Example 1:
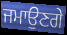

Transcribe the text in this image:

ਜਮਾਉਣਗੇ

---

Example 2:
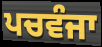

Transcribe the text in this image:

ਪਚਵੰਜਾ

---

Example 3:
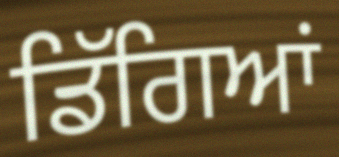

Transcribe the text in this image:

ਡਿੱਗਿਆਂ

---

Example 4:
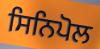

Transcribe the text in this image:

ਸਿਨਿਪੋਲ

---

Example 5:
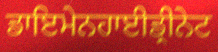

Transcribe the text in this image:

ਡਾਇਮੇਨਹਾਈਡ੍ਰੀਨੇਟ